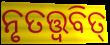
ନୃତତ୍ତ୍ୱବିତ୍